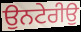
ਉਨਟੇਰੀਉ